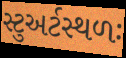
સ્ટુઅર્ટસ્થળઃ